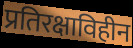
प्रतिरक्षाविहीन